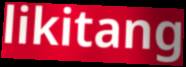
likitang